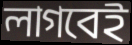
লাগবেই